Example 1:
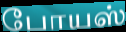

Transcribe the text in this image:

போயஸ்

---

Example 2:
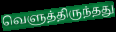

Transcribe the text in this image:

வெளுத்திருந்தது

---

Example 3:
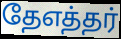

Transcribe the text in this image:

தேஎத்தர்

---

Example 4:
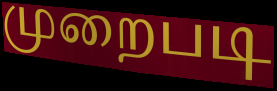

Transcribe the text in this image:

முறைபடி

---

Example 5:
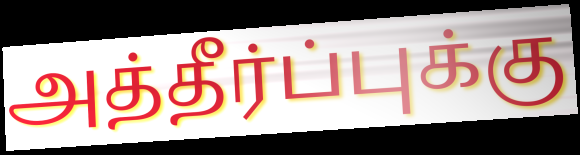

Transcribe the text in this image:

அத்தீர்ப்புக்கு